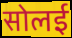
सोलई